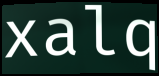
xalq